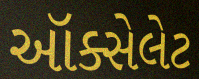
ઑક્સેલેટ